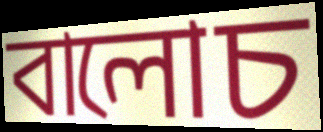
বালোচ